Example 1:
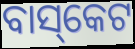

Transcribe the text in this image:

ବାସ୍‌କେଟ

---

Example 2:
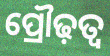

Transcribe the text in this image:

ପ୍ରୌଢ଼ତ୍ୱ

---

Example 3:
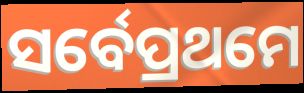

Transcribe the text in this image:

ସର୍ବେପ୍ରଥମେ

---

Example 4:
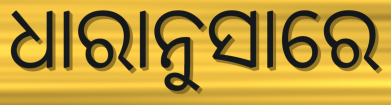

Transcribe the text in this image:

ଧାରାନୁସାରେ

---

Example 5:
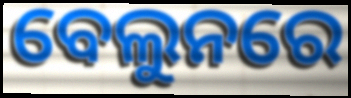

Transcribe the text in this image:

ବେଲୁନରେ